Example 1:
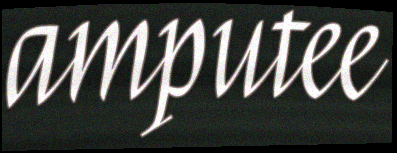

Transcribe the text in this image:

amputee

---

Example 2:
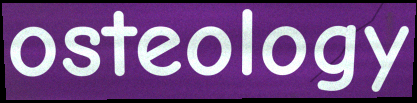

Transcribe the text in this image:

osteology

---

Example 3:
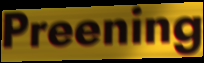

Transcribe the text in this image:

Preening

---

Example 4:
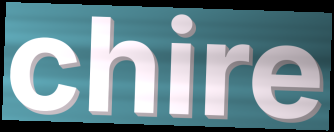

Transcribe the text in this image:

chire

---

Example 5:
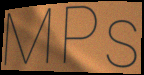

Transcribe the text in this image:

MPs